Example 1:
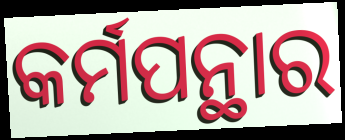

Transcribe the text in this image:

କର୍ମପନ୍ଥାର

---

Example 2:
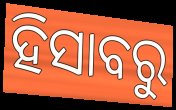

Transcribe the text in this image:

ହିସାବରୁ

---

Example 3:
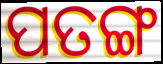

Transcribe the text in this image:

ପତଙ୍ଗ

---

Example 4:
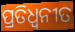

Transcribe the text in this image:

ପ୍ରତିଧ୍ବନୀତ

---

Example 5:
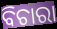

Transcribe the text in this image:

ବିଚାରା